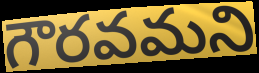
గౌరవమని